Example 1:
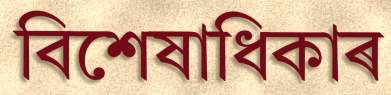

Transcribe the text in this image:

বিশেষাধিকাৰ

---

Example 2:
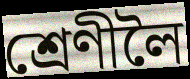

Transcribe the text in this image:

শ্ৰেণীলৈ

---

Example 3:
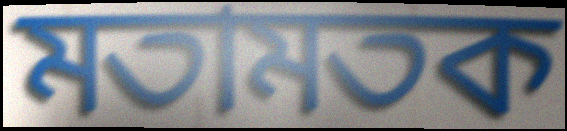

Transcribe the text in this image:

মতামতক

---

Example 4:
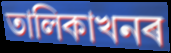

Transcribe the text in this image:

তালিকাখনৰ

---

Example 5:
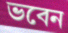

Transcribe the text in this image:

ভবেন